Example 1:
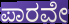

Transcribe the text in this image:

ಪಾರವೇ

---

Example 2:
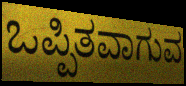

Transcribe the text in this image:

ಒಪ್ಪಿತವಾಗುವ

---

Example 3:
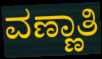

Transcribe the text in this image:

ವಣ್ಣಾತಿ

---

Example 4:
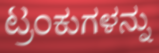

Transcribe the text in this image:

ಟ್ರಂಕುಗಳನ್ನು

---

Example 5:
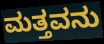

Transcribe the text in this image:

ಮತ್ತವನು